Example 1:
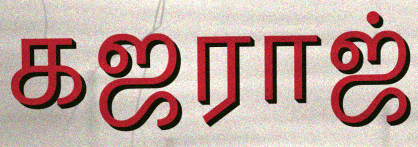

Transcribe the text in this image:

கஜராஜ்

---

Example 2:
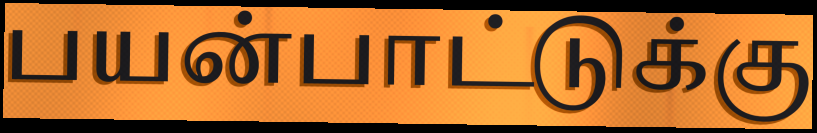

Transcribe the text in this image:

பயன்பாட்டுக்கு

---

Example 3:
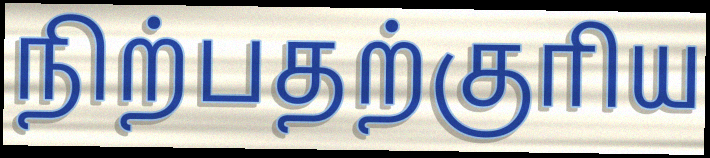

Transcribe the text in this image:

நிற்பதற்குரிய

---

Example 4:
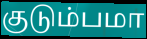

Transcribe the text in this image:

குடும்பமா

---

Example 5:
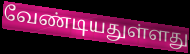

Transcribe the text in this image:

வேண்டியதுள்ளது